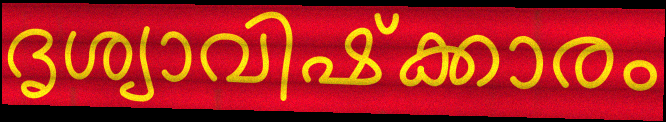
ദൃശ്യാവിഷ്‌ക്കാരം